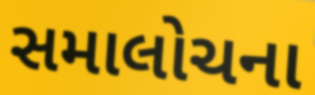
સમાલોચના